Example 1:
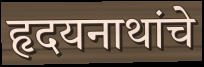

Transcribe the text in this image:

हृदयनाथांचे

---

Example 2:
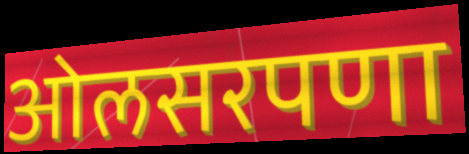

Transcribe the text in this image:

ओलसरपणा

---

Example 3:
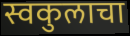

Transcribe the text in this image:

स्वकुलाचा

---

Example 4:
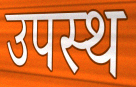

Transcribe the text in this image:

उपस्थ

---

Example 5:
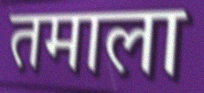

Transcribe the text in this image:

तमाला